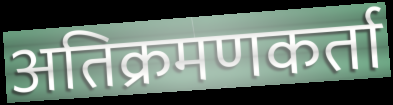
अतिक्रमणकर्ता